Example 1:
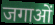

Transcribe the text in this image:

जगाओं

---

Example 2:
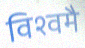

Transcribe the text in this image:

विश्वमै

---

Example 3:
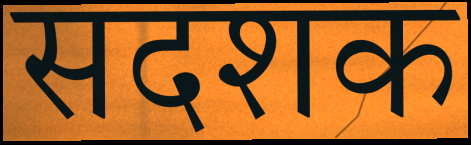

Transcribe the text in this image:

सदशक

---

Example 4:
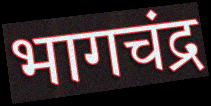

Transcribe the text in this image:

भागचंद्र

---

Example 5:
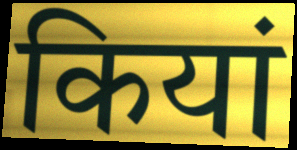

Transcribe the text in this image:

कियां